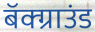
बॅक्ग्राउंड